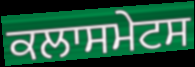
ਕਲਾਸਮੇਟਸ